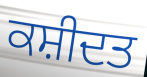
ਕਸ਼ੀਦਤ